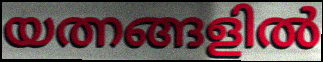
യത്നങ്ങളിൽ